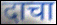
दाचा